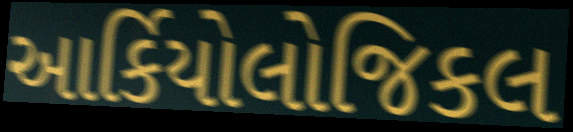
આર્કિયોલોજિકલ